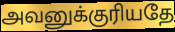
அவனுக்குரியதே